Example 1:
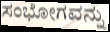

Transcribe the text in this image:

ಸಂಭೋಗವನ್ನು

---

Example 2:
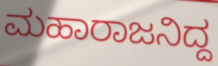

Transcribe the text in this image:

ಮಹಾರಾಜನಿದ್ದ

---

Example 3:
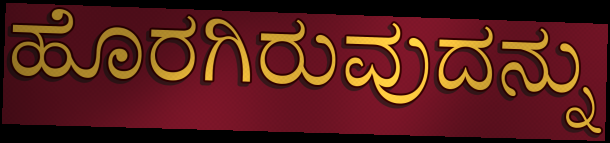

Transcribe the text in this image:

ಹೊರಗಿರುವುದನ್ನು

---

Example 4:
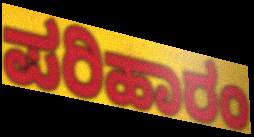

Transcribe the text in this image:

ಪರಿಹಾರಂ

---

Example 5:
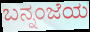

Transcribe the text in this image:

ಬನ್ನಂಜೆಯ